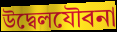
উদ্বেলযৌবনা